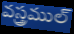
వస్త్రముల్